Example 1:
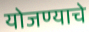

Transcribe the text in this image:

योजण्याचे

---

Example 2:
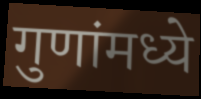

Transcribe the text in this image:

गुणांमध्ये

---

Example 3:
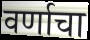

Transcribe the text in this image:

वर्णाचा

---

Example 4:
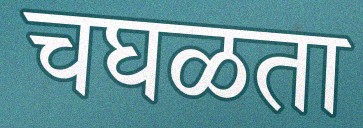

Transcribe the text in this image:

चघळता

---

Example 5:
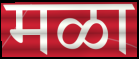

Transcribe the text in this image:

मळा